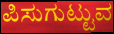
ಪಿಸುಗುಟ್ಟುವ